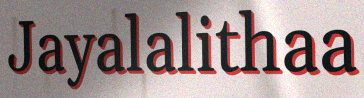
Jayalalithaa